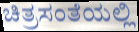
ಚಿತ್ರಸಂತೆಯಲ್ಲಿ